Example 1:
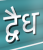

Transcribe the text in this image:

द्वैध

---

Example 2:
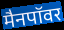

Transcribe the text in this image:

मैनपॉवर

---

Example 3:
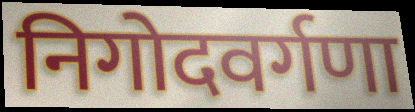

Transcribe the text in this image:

निगोदवर्गणा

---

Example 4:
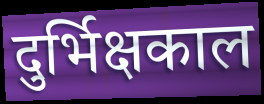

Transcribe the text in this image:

दुर्भिक्षकाल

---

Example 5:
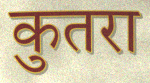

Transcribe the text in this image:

कुतरा